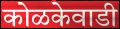
कोळकेवाडी